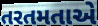
તરતમતાએ